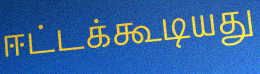
ஈட்டக்கூடியது